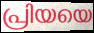
പ്രിയയെ